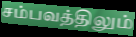
சம்பவத்திலும்